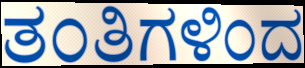
ತಂತಿಗಳಿಂದ